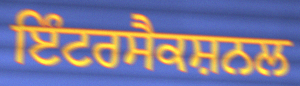
ਇੰਟਰਸੈਕਸ਼ਨਲ